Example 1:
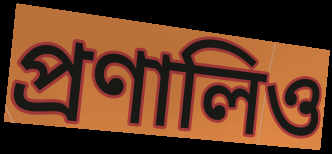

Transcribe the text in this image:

প্রণালিও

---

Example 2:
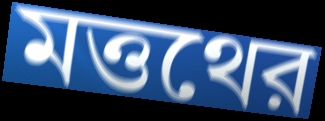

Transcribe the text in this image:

মত্তথের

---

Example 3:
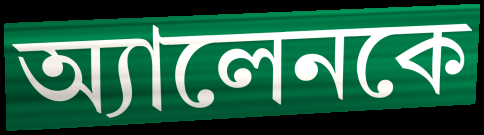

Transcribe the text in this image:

অ্যালেনকে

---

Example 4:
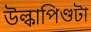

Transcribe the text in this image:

উল্কাপিণ্ডটা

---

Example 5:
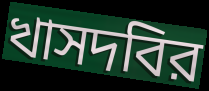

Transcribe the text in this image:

খাসদবির